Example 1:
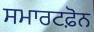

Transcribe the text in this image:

ਸਮਾਰਟਫ਼ੋਨ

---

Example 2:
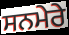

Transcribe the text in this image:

ਸਨਮੇਰੇ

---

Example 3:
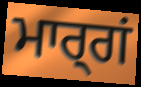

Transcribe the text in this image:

ਮਾਰ੍ਗਂ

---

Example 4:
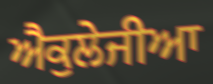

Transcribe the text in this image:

ਐਕੁਲੇਜੀਆ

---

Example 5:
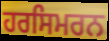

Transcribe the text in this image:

ਹਰਸਿਮਰਨ